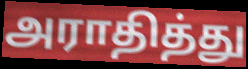
அராதித்து